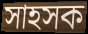
সাহসক